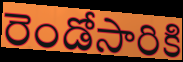
రెండోసారికి